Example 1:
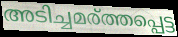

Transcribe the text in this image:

അടിച്ചമര്ത്തപ്പെട്ട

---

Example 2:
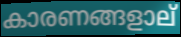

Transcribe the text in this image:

കാരണങ്ങളാല്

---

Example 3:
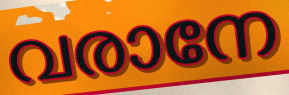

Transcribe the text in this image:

വരാനേ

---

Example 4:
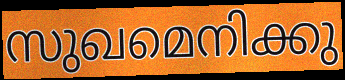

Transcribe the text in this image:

സുഖമെനിക്കു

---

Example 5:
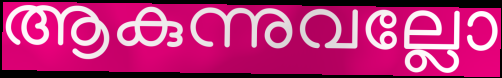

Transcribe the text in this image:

ആകുന്നുവല്ലോ